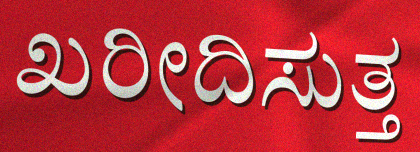
ಖರೀದಿಸುತ್ತ